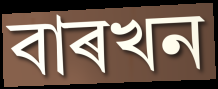
বাৰখন